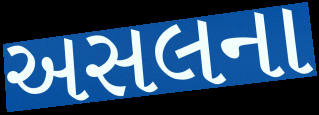
અસલના